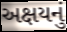
અક્ષયનું